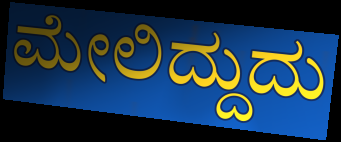
ಮೇಲಿದ್ದುದು